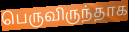
பெருவிருந்தாக